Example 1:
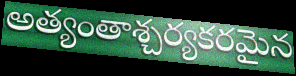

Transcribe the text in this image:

అత్యంతాశ్చర్యకరమైన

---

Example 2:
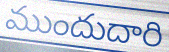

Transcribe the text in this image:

ముందుదారి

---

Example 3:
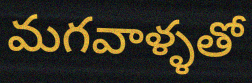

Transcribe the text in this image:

మగవాళ్ళతో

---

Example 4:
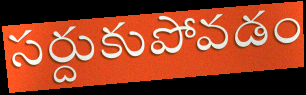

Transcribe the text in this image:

సర్దుకుపోవడం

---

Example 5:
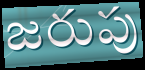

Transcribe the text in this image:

జరుపు